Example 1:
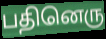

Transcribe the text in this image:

பதினெரு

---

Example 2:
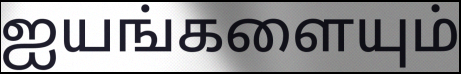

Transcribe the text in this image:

ஐயங்களையும்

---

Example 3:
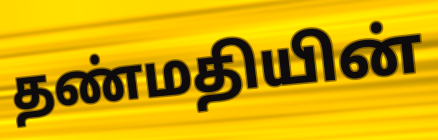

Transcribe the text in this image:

தண்மதியின்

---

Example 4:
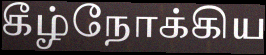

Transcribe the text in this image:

கீழ்நோக்கிய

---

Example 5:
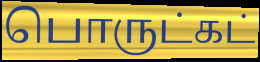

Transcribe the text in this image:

பொருட்கட்